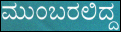
ಮುಂಬರಲಿದ್ದ